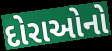
દોરાઓનો